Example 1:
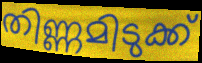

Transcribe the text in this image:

തിണ്ണമിടുക്ക്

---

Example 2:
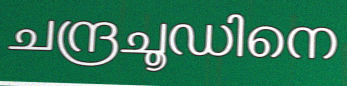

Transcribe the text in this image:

ചന്ദ്രചൂഡിനെ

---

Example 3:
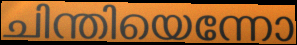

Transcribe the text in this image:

ചിന്തിയെന്നോ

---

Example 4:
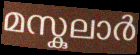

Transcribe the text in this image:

മസ്കുലാർ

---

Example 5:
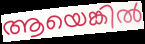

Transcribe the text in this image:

ആയെങ്കിൽ